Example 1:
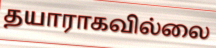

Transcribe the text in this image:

தயாராகவில்லை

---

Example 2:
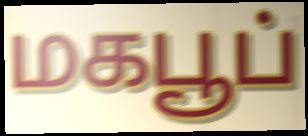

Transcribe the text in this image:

மகபூப்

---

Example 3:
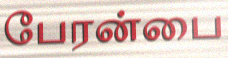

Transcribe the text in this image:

பேரன்பை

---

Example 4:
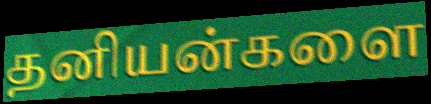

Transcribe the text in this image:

தனியன்களை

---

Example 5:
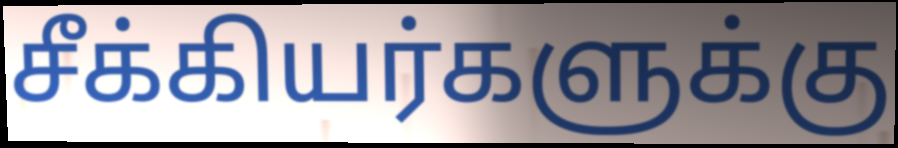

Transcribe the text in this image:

சீக்கியர்களுக்கு